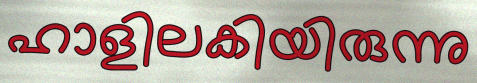
ഹാളിലകിയിരുന്നു